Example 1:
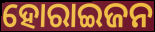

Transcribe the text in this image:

ହୋରାଇଜନ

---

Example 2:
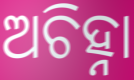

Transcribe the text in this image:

ଅଚିହ୍ନା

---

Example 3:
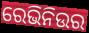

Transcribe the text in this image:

ରେଭିନିଉର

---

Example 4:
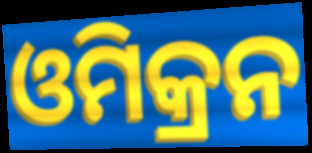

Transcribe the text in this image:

ଓମିକ୍ରନ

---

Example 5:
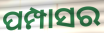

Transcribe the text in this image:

ପମ୍ପାସର